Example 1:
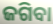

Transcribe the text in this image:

ଜଗିବା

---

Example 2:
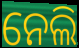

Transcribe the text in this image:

ନେଲି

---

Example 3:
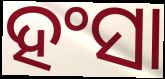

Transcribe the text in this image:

ହଂସା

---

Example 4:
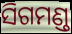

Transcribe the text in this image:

ସିଗମଣ୍ଡ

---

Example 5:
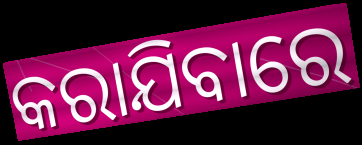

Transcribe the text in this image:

କରାଯିବାରେ